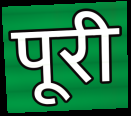
पूरी